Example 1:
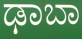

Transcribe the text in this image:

ಢಾಬಾ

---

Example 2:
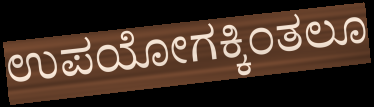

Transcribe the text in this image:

ಉಪಯೋಗಕ್ಕಿಂತಲೂ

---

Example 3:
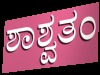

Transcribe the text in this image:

ಶಾಶ್ವತಂ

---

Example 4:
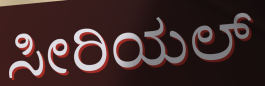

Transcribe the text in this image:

ಸೀರಿಯಲ್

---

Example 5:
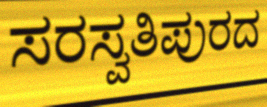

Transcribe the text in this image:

ಸರಸ್ವತಿಪುರದ